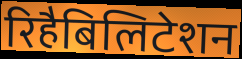
रिहैबिलिटेशन